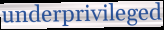
underprivileged